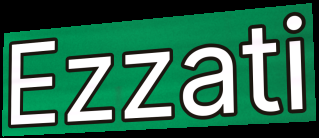
Ezzati